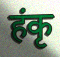
हंकृ